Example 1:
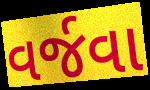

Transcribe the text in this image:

વર્જવા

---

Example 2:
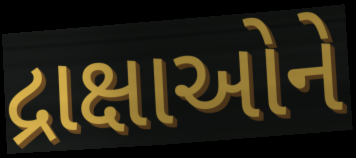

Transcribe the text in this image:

દ્રાક્ષાઓને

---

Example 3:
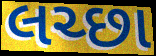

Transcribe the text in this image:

લચ્છા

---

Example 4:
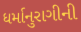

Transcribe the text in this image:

ધર્માનુરાગીની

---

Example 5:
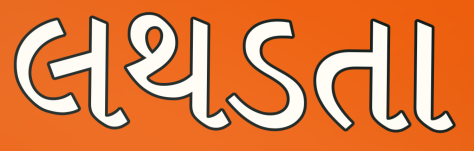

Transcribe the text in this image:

લથડતા